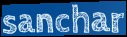
sanchar